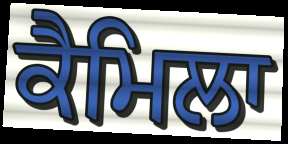
ਕੈਮਿਲਾ